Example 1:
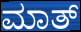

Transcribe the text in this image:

ಮಾತ್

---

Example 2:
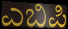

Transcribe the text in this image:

ಎಬಿಪಿ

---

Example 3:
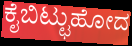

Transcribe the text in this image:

ಕೈಬಿಟ್ಟುಹೋದ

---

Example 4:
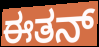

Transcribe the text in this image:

ಈತನ್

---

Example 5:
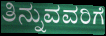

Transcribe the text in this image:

ತಿನ್ನುವವರಿಗೆ